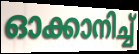
ഓക്കാനിച്ച്